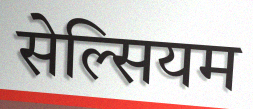
सेल्सियम